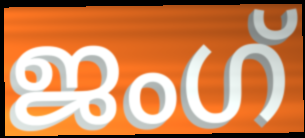
ജംഗ്